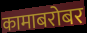
कामाबरोबर